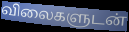
விலைகளுடன்